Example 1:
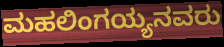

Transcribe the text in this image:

ಮಹಲಿಂಗಯ್ಯನವರು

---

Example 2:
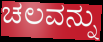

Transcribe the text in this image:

ಚಲವನ್ನು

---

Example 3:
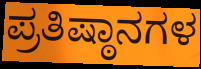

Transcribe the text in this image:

ಪ್ರತಿಷ್ಠಾನಗಳ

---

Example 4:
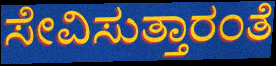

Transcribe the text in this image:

ಸೇವಿಸುತ್ತಾರಂತೆ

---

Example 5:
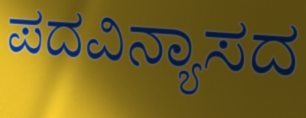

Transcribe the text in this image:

ಪದವಿನ್ಯಾಸದ